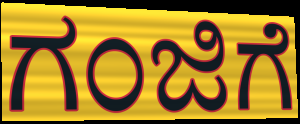
ಗಂಜಿಗೆ